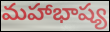
మహాభాష్య